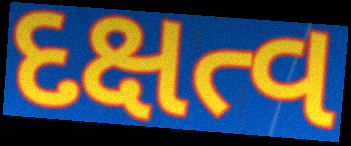
દક્ષત્વ